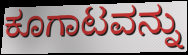
ಕೂಗಾಟವನ್ನು